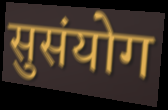
सुसंयोग